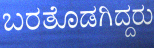
ಬರತೊಡಗಿದ್ದರು